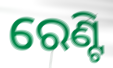
ରେଣ୍ଟି